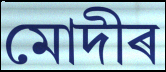
মোদীৰ